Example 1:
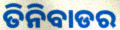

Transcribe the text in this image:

ତିନିବାଡର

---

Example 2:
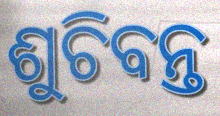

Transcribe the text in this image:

ଶୁଚିବନ୍ତ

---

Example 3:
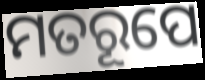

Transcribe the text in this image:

ମତରୂପେ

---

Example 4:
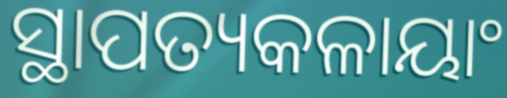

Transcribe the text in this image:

ସ୍ଥାପତ୍ୟକଳାୟାଂ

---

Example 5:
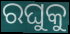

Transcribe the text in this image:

ରଘୁକୁ